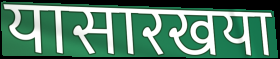
यासारखया